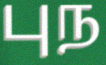
புந